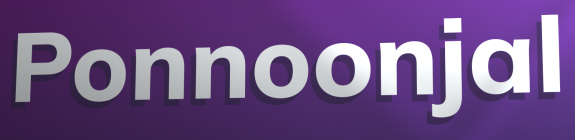
Ponnoonjal